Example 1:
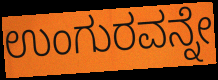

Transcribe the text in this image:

ಉಂಗುರವನ್ನೇ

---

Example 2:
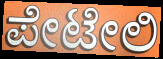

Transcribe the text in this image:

ಪೇಟೇಲಿ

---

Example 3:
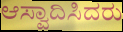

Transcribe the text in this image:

ಆಸ್ವಾದಿಸಿದರು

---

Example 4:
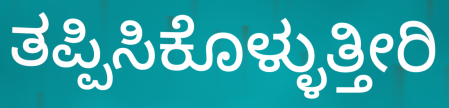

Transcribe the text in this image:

ತಪ್ಪಿಸಿಕೊಳ್ಳುತ್ತೀರಿ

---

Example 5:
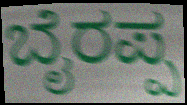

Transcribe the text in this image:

ಬೈರಪ್ಪ